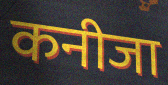
कनीजा